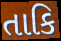
તાકિ